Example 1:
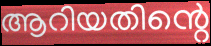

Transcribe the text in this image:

ആറിയതിന്റെ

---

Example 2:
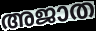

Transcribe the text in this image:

അജാത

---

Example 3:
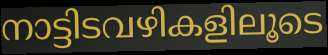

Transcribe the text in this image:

നാട്ടിടവഴികളിലൂടെ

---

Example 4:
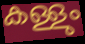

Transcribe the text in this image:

കള്ളും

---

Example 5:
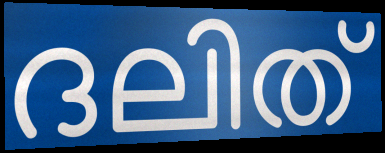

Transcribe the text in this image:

ദലിത്